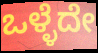
ಒಳ್ಳೆದೇ